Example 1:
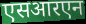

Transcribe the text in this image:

एसआरएन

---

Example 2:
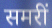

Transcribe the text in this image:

समरीं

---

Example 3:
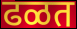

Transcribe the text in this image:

ढळत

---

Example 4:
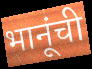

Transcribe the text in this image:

भानूंची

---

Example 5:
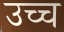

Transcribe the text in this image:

उच्च